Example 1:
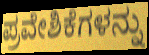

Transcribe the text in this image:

ಪ್ರವೇಶಿಕೆಗಳನ್ನು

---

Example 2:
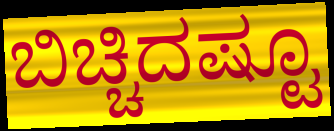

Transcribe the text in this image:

ಬಿಚ್ಚಿದಷ್ಟೂ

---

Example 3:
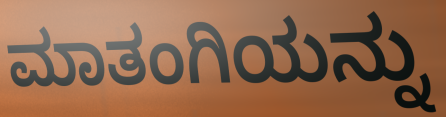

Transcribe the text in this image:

ಮಾತಂಗಿಯನ್ನು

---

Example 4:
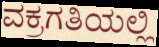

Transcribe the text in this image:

ವಕ್ರಗತಿಯಲ್ಲಿ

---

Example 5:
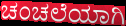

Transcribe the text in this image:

ಚಂಚಲೆಯಾಗಿ